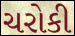
ચરોકી